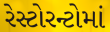
રેસ્ટોરન્ટોમાં